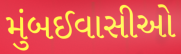
મુંબઈવાસીઓ